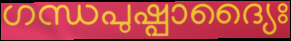
ഗന്ധപുഷ്പാദ്യൈഃ